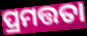
ପ୍ରମତ୍ତତା